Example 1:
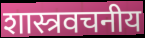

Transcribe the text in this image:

शास्त्रवचनीय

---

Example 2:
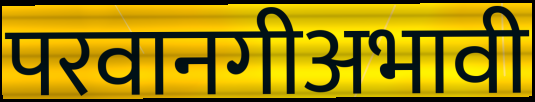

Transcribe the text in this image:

परवानगीअभावी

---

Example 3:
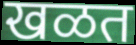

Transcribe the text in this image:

खळत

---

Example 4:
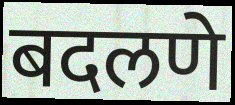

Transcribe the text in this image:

बदलणे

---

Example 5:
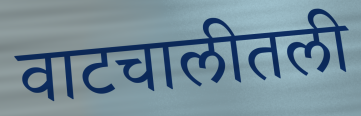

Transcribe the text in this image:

वाटचालीतली